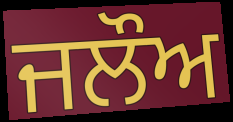
ਜਲੌਅ